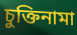
চুক্তিনামা